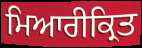
ਮਿਆਰੀਕ੍ਰਿਤ